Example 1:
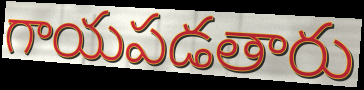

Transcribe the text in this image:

గాయపడతారు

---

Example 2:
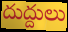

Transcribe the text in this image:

దుద్దులు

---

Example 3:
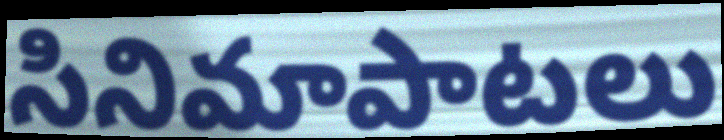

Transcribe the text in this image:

సినిమాపాటలు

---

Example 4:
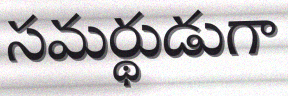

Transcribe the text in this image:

సమర్థుడుగా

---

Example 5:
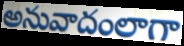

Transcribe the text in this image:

అనువాదంలాగా